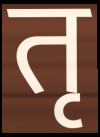
तृ